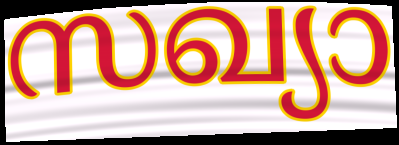
സഖ്യാ